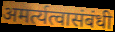
अमर्त्यत्वासंबंधी